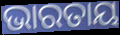
ଭାରତାୟ